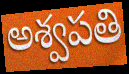
అశ్వపతి